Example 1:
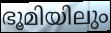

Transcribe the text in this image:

ഭൂമിയിലും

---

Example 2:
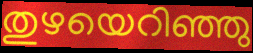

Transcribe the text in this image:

തുഴയെറിഞ്ഞു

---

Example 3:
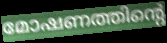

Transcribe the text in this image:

മോഷണത്തിന്റെ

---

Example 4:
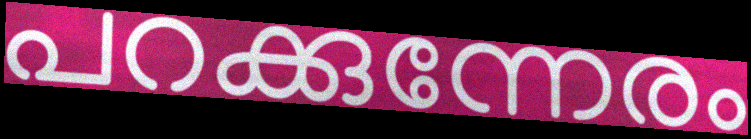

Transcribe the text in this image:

പറക്കുന്നേരം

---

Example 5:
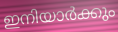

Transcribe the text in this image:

ഇനിയാർക്കും